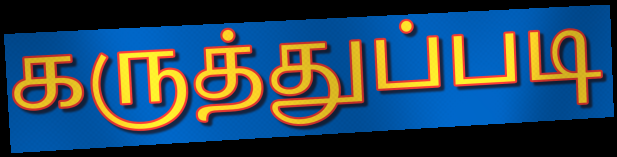
கருத்துப்படி